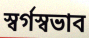
স্বর্গস্বভাব